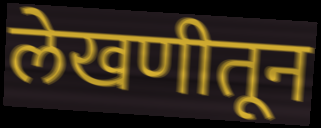
लेखणीतून